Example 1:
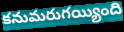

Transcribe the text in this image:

కనుమరుగయ్యింది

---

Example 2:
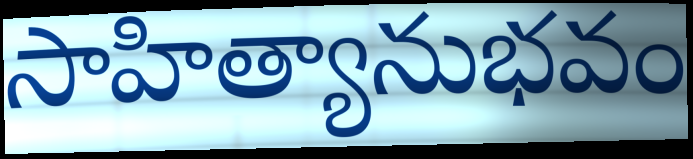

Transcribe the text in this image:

సాహిత్యానుభవం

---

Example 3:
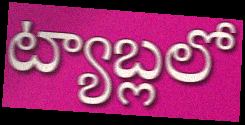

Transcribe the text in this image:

ట్యాబ్లలో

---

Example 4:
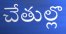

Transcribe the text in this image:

చేతుల్లొ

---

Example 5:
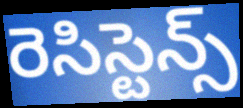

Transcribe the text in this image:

రెసిస్టెన్స్